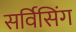
सर्विसिंग